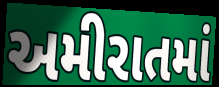
અમીરાતમાં